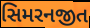
સિમરનજીત